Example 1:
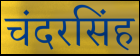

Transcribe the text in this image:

चंदरसिंह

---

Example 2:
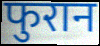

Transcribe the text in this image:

फुरान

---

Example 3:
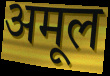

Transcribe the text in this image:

अमूल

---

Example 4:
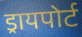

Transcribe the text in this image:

ड्रायपोर्ट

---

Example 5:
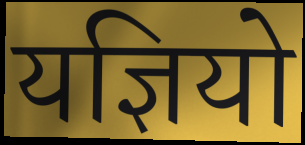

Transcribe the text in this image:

यज्ञियो